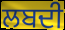
ਲਬਦੀ